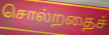
சொல்றதைச்